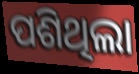
ପଶିଥିଲା